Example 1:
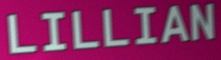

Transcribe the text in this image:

LILLIAN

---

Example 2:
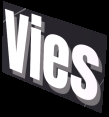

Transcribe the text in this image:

Vies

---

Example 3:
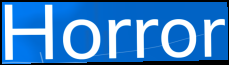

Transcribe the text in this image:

Horror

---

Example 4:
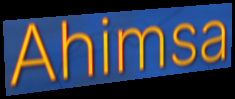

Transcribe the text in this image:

Ahimsa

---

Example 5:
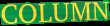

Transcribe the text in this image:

COLUMN